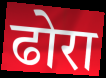
ढोरा